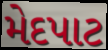
મેદપાટ